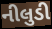
નીલુડી